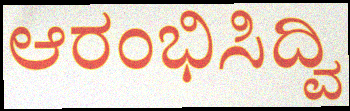
ಆರಂಭಿಸಿದ್ವಿ